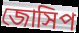
জোসিপ